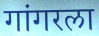
गांगरला